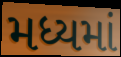
મધ્યમાં